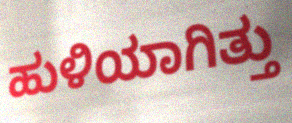
ಹುಳಿಯಾಗಿತ್ತು